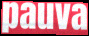
pauva